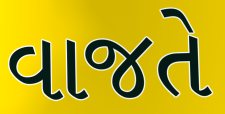
વાજતે